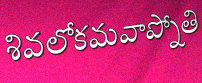
శివలోకమవాప్నోతి